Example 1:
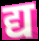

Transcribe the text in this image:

द्य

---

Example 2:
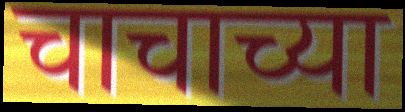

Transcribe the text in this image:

चाचाच्या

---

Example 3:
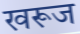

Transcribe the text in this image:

खरूज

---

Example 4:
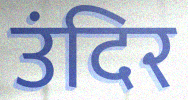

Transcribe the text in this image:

उंदिर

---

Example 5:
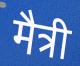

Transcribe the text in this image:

मैत्री